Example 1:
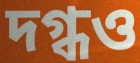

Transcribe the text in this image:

দগ্ধও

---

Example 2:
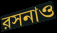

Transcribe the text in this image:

রসনাও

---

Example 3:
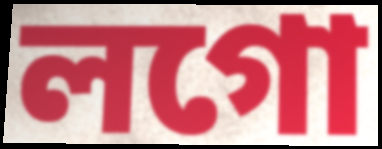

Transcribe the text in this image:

লগো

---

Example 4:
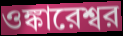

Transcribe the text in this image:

ওঙ্কারেশ্বর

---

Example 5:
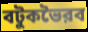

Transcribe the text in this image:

বটুকভৈরব